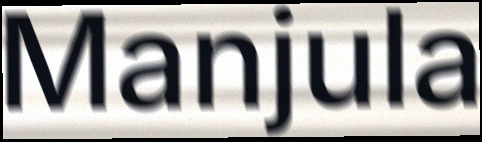
Manjula